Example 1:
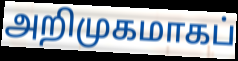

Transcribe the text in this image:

அறிமுகமாகப்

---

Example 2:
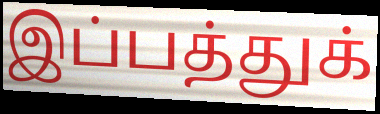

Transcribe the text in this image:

இப்பத்துக்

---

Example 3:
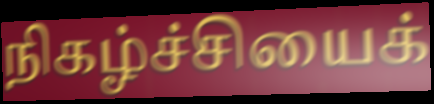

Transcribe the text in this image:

நிகழ்ச்சியைக்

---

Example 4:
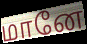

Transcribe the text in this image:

மானே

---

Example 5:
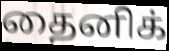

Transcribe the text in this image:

தைனிக்